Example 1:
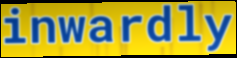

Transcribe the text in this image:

inwardly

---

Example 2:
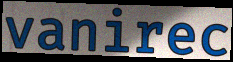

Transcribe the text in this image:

vanirec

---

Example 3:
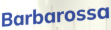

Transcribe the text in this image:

Barbarossa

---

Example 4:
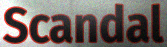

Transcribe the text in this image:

Scandal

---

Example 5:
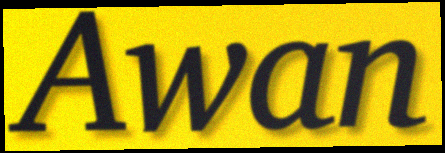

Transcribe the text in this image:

Awan